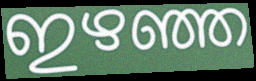
ഇഴഞ്ഞ